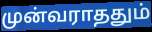
முன்வராததும்